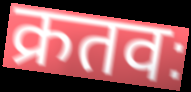
क्रतवः